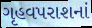
ગૃહવપરાશનાં